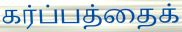
கர்ப்பத்தைக்